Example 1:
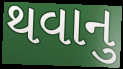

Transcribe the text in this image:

થવાનુ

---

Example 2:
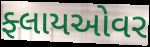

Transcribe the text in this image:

ફ્લાયઓવર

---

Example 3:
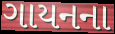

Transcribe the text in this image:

ગાયનના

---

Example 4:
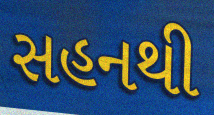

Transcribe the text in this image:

સહનથી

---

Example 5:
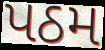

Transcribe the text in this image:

પઠમ